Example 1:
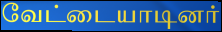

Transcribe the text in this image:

வேட்டையாடினர்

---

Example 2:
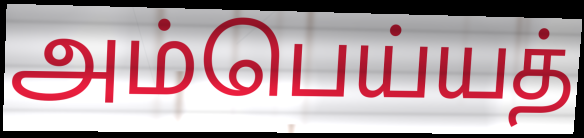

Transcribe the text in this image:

அம்பெய்யத்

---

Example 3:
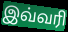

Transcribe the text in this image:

இவ்வரி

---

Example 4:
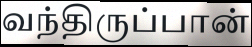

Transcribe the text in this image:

வந்திருப்பான்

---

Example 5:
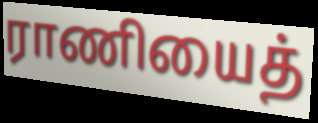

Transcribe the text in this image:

ராணியைத்